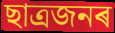
ছাত্ৰজনৰ